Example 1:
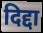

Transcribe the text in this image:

दिद्दा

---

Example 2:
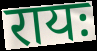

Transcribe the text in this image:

रायः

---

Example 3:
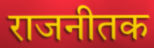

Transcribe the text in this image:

राजनीतक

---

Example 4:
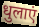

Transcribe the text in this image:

धुलाएं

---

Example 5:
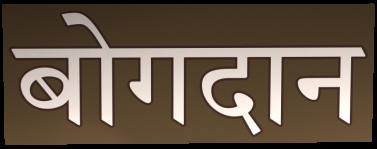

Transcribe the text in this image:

बोगदान